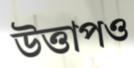
উত্তাপও